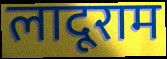
लादूराम